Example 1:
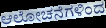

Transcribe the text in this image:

ಆಲೋಚನೆಗಳಿಂದ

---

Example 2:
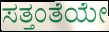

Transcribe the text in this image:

ಸತ್ತಂತೆಯೇ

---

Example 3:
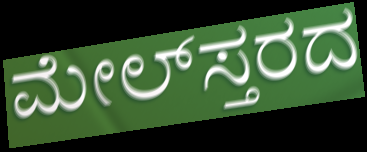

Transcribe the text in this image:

ಮೇಲ್‌ಸ್ತರದ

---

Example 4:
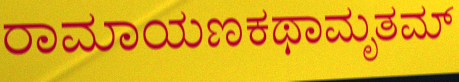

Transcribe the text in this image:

ರಾಮಾಯಣಕಥಾಮೃತಮ್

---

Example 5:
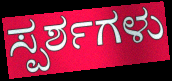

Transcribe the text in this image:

ಸ್ಪರ್ಶಗಳು